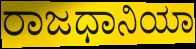
ರಾಜಧಾನಿಯಾ